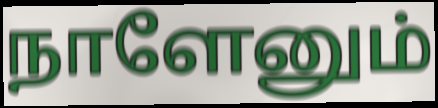
நாளேனும்